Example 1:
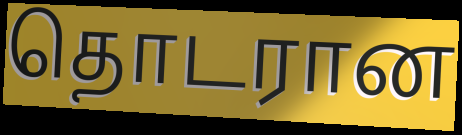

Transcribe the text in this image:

தொடரான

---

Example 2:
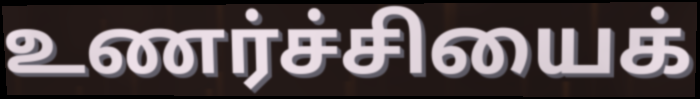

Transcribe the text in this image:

உணர்ச்சியைக்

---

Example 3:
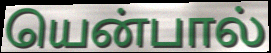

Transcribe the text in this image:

யென்பால்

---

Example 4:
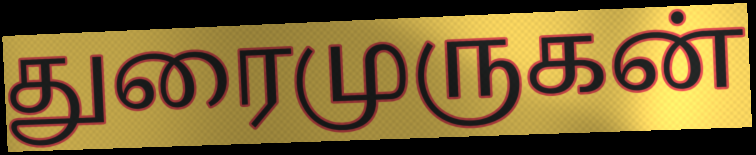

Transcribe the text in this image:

துரைமுருகன்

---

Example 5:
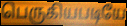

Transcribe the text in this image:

பெருகியபடியே